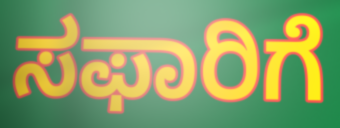
ಸಫಾರಿಗೆ